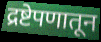
द्रष्टेपणातून